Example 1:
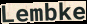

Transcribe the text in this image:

Lembke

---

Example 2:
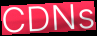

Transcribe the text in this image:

CDNs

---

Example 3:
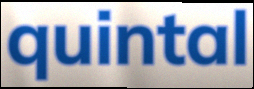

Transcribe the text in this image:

quintal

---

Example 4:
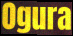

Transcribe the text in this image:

Ogura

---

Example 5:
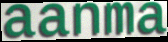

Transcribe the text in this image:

aanma